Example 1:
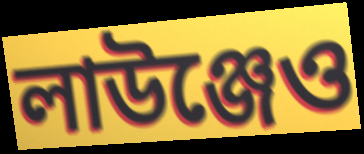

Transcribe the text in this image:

লাউঞ্জেও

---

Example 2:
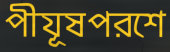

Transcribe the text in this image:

পীযূষপরশে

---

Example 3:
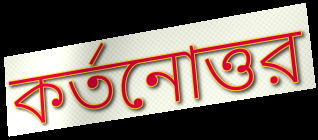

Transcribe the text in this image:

কর্তনোত্তর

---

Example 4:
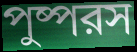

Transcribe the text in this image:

পুষ্পরস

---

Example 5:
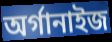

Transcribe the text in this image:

অর্গানাইজ